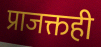
प्राजक्तही